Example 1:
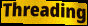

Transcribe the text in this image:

Threading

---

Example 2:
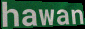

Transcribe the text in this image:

hawan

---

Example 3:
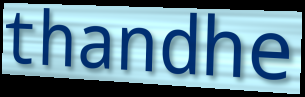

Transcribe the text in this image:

thandhe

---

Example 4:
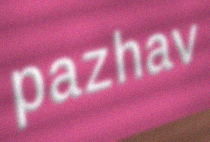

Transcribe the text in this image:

pazhav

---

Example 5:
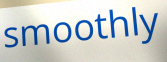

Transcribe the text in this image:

smoothly